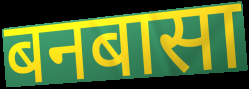
बनबासा